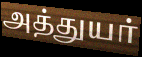
அத்துயர்